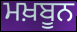
ਮਖ਼ਬੂਨ